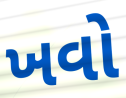
ખવો